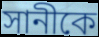
সানীকে